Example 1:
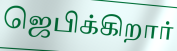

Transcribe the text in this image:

ஜெபிக்கிறார்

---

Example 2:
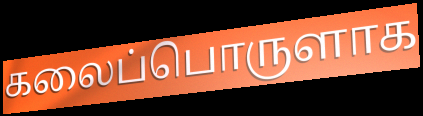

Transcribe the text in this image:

கலைப்பொருளாக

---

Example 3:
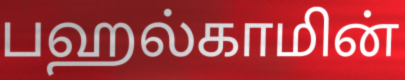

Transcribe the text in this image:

பஹல்காமின்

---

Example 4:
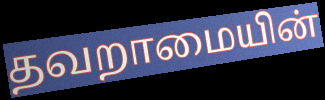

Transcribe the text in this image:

தவறாமையின்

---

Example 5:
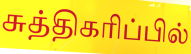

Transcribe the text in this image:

சுத்திகரிப்பில்